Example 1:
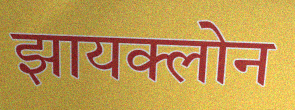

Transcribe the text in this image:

झायक्लोन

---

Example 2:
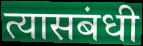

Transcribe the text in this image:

त्यासबंधी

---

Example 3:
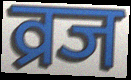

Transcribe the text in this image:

व्रज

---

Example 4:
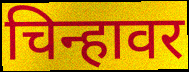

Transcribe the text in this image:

चिन्हावर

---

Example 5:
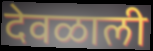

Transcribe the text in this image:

देवळाली